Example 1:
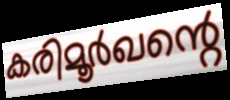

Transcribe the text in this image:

കരിമൂർഖന്റെ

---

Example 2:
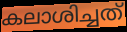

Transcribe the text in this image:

കലാശിച്ചത്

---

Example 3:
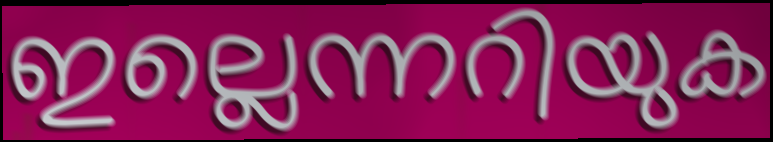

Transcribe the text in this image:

ഇല്ലെന്നറിയുക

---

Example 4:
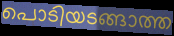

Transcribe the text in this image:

പൊടിയടങ്ങാത്ത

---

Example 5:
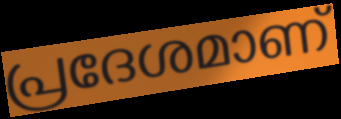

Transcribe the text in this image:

പ്രദേശമാണ്